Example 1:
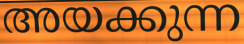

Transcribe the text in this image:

അയക്കുന്ന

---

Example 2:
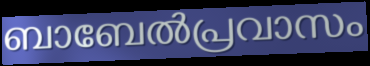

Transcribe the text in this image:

ബാബേൽപ്രവാസം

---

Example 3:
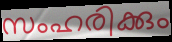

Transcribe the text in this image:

സംഹരിക്കും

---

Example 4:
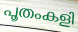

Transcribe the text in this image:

പൂതംകളി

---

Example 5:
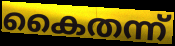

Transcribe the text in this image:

കൈതന്ന്